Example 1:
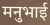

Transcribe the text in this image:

मनुभाई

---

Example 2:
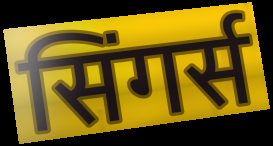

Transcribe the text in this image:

सिंगर्स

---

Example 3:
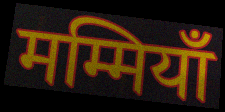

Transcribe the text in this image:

मम्मियाँ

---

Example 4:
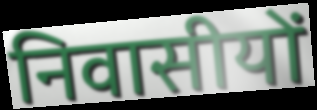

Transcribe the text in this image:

निवासीयों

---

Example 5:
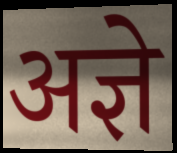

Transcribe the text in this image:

अज्ञे